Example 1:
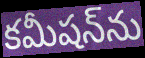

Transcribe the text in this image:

కమీషన్‌ను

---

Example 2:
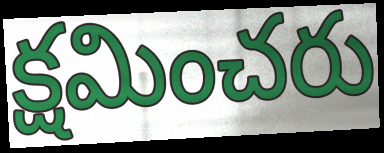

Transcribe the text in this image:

క్షమించరు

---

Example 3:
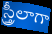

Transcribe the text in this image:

స్త్రీలాగా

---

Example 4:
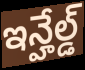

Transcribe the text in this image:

ఇన్హేల్డ్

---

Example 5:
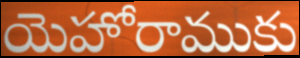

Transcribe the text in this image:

యెహోరాముకు